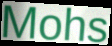
Mohs